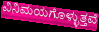
ವಿನಿಮಯಗೊಳ್ಳುತ್ತವೆ